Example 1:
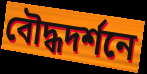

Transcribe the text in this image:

বৌদ্ধদর্শনে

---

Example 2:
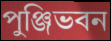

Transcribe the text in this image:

পুঞ্জিভবন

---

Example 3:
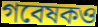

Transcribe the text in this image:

গবেষকও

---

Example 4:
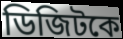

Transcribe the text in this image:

ডিজিটকে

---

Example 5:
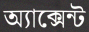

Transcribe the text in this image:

অ্যাক্সেন্ট